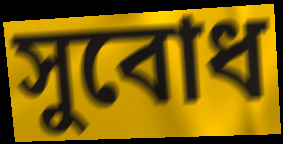
সুবোধ